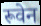
रूवेन